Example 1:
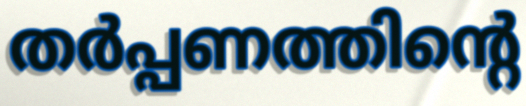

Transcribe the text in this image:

തർപ്പണത്തിന്റെ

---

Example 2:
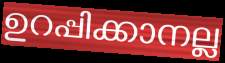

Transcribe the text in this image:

ഉറപ്പിക്കാനല്ല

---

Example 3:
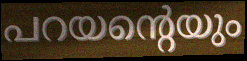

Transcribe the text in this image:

പറയന്റെയും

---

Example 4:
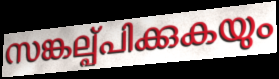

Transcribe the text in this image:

സങ്കല്പ്പിക്കുകയും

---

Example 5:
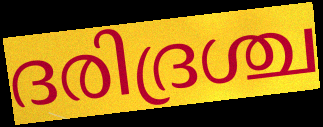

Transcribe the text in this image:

ദരിദ്രശ്ച